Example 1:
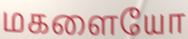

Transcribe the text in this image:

மகளையோ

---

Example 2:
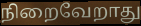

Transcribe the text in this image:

நிறைவேறாது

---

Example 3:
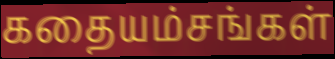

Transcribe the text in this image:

கதையம்சங்கள்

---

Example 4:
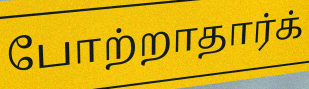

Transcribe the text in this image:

போற்றாதார்க்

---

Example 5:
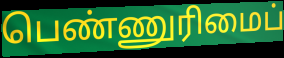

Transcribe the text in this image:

பெண்ணுரிமைப்